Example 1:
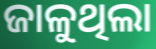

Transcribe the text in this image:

ଜାଳୁଥିଲା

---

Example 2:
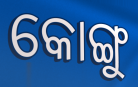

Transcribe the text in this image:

କୋଙ୍ଗୁ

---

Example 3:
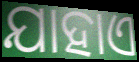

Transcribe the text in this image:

ଯାହାଏ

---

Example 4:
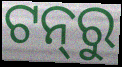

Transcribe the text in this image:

ଟନ୍‍ରୁ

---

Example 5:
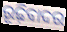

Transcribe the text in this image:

ରୂଢ଼ିବାଦର